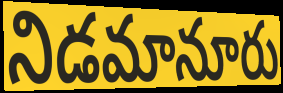
నిడమానూరు